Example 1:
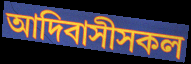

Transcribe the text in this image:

আদিবাসীসকল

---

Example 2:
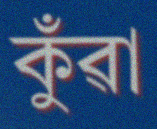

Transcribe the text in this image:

কুঁৱা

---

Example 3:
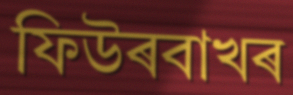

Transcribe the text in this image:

ফিউৰবাখৰ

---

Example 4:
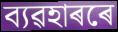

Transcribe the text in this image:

ব্যৱহাৰৰে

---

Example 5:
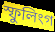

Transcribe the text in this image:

স্ফুলিংগ